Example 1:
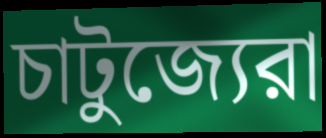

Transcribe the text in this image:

চাটুজ্যেরা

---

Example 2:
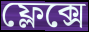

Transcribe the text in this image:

ফ্লেক্সে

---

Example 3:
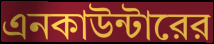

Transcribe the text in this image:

এনকাউন্টারের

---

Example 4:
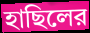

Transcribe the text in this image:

হাছিলের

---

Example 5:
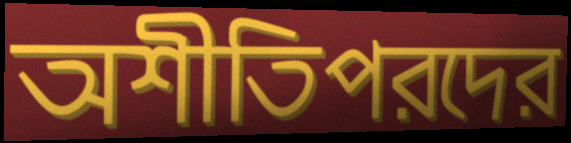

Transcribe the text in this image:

অশীতিপরদের